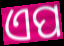
ଏପ